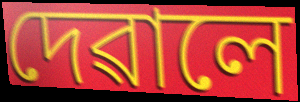
দেৱালে